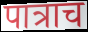
पात्राच